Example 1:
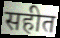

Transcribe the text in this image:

सहीत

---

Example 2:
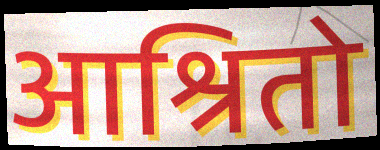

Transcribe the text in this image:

आश्रितो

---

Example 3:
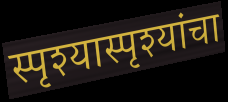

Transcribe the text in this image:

स्पृश्यास्पृश्यांचा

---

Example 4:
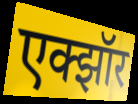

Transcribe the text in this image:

एक्झॉर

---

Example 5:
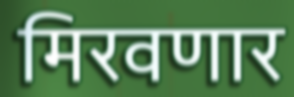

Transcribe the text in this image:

मिरवणार